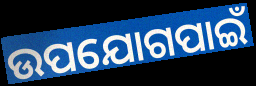
ଉପଯୋଗପାଇଁ